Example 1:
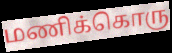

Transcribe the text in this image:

மணிக்கொரு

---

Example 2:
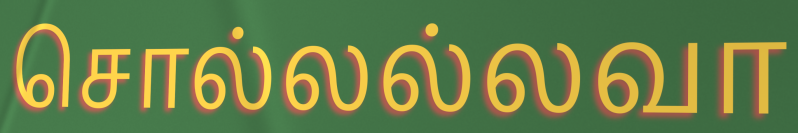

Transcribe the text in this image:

சொல்லல்லவா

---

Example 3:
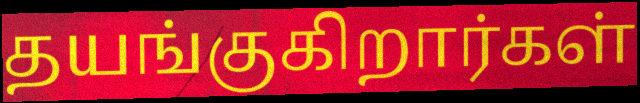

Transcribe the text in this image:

தயங்குகிறார்கள்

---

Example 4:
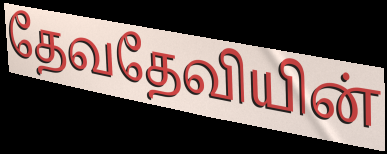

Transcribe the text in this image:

தேவதேவியின்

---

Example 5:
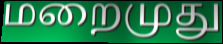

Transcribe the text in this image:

மறைமுது